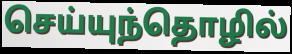
செய்யுந்தொழில்